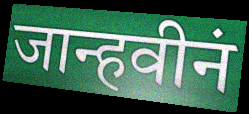
जान्हवीनं